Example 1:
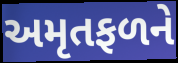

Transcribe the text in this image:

અમૃતફળને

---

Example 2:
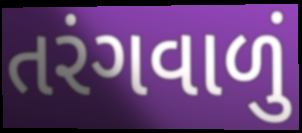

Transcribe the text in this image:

તરંગવાળું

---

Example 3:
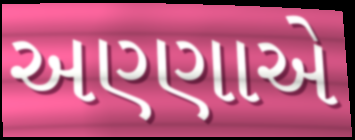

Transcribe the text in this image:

અણ્ણાએ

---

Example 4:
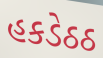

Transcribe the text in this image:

હકડેઠઠ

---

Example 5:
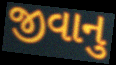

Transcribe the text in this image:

જીવાનુ